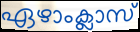
ഏഴാംക്ലാസ്